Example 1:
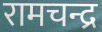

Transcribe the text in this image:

रामचन्द्र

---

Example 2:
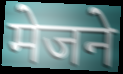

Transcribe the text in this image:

मेजने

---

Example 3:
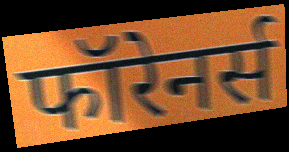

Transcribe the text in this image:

फॉरेनर्स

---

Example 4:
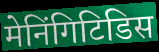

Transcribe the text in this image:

मेनिंगिटिडिस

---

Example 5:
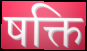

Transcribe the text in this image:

षक्ति